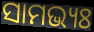
ସାମଭ୍ୟଃ